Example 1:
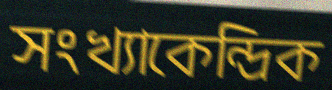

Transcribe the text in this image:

সংখ্যাকেন্দ্রিক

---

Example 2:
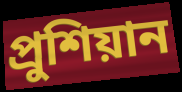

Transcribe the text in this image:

প্রুশিয়ান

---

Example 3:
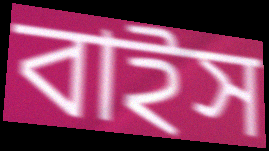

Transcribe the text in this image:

বাইস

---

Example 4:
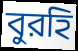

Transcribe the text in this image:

বুরহি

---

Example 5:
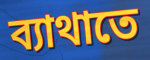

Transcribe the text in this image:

ব্যাথাতে